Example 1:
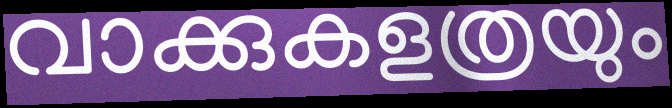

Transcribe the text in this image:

വാക്കുകളത്രയും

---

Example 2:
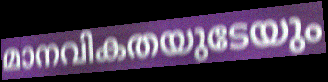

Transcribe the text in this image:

മാനവികതയുടേയും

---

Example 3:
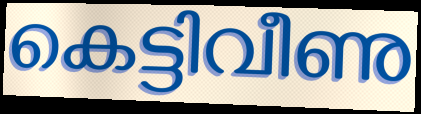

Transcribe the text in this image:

കെട്ടിവീണു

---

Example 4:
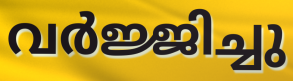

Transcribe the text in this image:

വർജ്ജിച്ചു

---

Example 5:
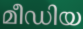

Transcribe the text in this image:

മീഡിയ